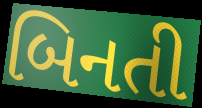
બિનતી